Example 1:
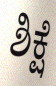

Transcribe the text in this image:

ಶಿಕ್ಷೆ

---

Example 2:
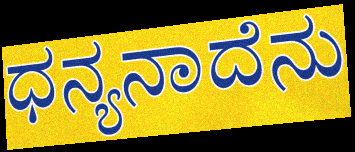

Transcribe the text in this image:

ಧನ್ಯನಾದೆನು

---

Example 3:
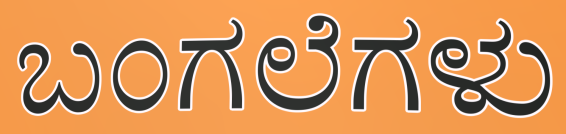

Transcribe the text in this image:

ಬಂಗಲೆಗಳು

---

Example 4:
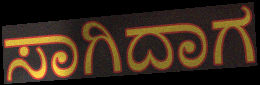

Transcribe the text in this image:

ಸಾಗಿದಾಗ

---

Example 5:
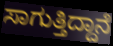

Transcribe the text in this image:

ಸಾಗುತ್ತಿದ್ದಾನೆ